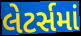
લેટર્સમાં